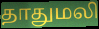
தாதுமலி